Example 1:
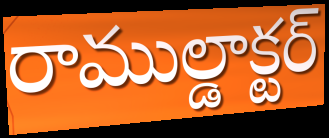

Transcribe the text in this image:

రాముల్డాక్టర్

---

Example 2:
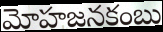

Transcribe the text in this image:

మోహజనకంబు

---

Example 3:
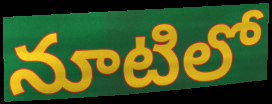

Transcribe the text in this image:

నూటిలో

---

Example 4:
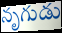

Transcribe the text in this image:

నృగుడు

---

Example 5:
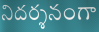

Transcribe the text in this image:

నిదర్శనంగా